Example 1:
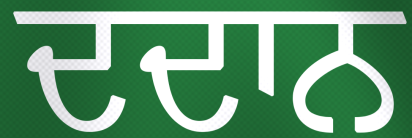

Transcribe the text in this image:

ਦਦਾਨ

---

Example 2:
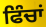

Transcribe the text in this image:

ਫਿੰਚਾਂ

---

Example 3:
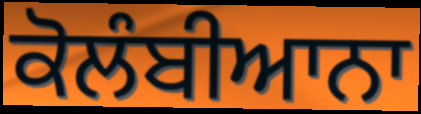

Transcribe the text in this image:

ਕੋਲੰਬੀਆਨਾ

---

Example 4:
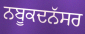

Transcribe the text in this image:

ਨਬੂਕਦਨੱਸਰ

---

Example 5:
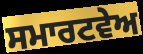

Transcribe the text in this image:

ਸਮਾਰਟਵੇਅ